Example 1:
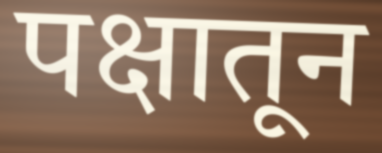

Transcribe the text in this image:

पक्षातून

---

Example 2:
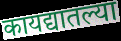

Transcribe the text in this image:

कायद्यातल्या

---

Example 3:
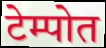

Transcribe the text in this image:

टेम्पोत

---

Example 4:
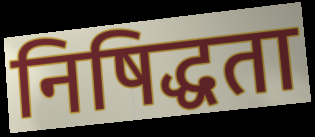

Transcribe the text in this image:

निषिद्धता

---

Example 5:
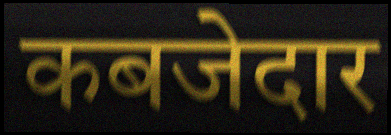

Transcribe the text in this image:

कबजेदार